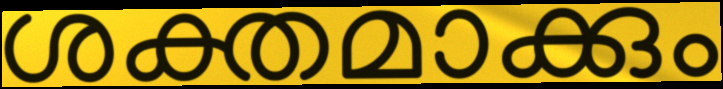
ശക്തമാക്കും